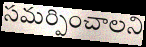
సమర్పించాలని